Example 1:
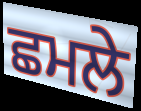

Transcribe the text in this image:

ਛਮਲੇ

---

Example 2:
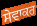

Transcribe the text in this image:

ਸੇਵਾਕਰ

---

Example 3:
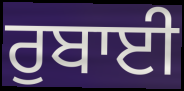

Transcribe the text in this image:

ਰੁਬਾਈ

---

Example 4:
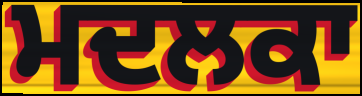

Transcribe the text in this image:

ਮਦਲਕਾ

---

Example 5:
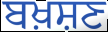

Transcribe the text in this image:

ਬਖ਼ਸ਼ਣ